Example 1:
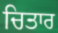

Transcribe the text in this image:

ਚਿਤਾਰ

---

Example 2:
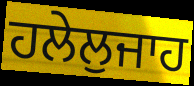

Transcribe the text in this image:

ਹਲੇਲੁਜਾਹ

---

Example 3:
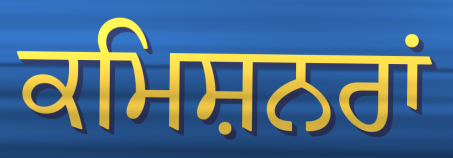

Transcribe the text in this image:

ਕਮਿਸ਼ਨਰਾਂ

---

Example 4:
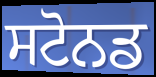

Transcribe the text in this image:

ਸਟੋਨਡ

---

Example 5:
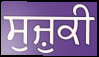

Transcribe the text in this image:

ਸੁਜ਼ੁਕੀ